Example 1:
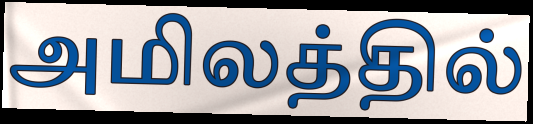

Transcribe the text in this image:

அமிலத்தில்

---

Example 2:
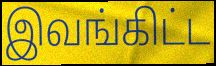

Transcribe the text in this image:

இவங்கிட்ட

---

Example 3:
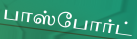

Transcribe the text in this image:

பாஸ்போர்ட்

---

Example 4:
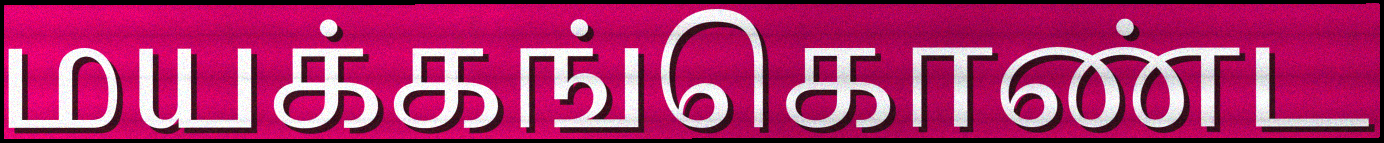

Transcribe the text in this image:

மயக்கங்கொண்ட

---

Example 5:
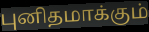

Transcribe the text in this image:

புனிதமாக்கும்